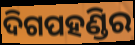
ଦିଗପହଣ୍ଡିର